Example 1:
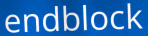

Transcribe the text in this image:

endblock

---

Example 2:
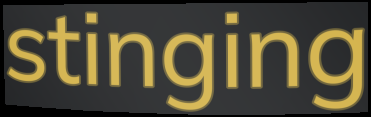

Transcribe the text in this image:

stinging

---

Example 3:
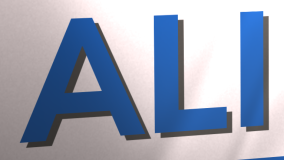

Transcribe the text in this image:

ALI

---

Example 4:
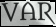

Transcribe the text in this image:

VAR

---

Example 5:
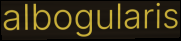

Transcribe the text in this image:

albogularis